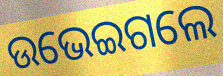
ଉଭେଇଗଲେ